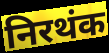
निरथंक